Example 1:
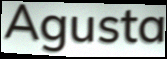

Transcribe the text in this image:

Agusta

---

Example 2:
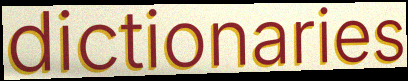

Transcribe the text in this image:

dictionaries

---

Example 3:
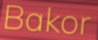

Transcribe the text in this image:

Bakor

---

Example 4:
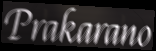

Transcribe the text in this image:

Prakarano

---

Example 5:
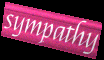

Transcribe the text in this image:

sympathy